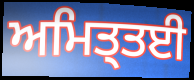
ਅਮਿਤ੍ਤਈ